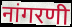
नांगरणी